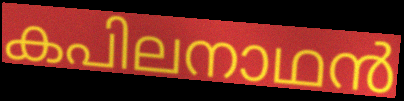
കപിലനാഥൻ